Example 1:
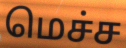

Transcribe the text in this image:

மெச்ச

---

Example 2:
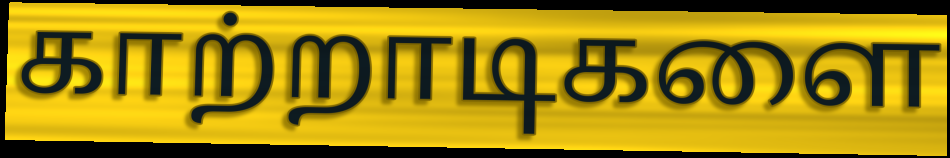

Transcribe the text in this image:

காற்றாடிகளை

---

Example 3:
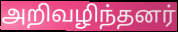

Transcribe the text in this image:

அறிவழிந்தனர்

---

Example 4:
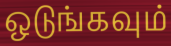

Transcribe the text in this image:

ஒடுங்கவும்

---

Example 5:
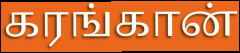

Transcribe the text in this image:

கரங்கான்